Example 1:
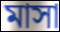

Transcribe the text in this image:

মাসা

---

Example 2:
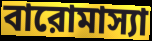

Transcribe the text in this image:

বারোমাস্যা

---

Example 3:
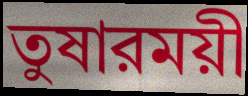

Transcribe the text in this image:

তুষারময়ী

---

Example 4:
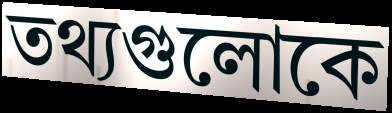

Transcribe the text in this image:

তথ্যগুলোকে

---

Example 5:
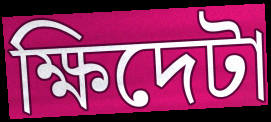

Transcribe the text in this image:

ক্ষিদেটা